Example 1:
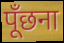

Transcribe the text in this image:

पूँछना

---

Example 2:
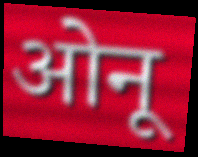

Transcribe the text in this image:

ओनू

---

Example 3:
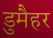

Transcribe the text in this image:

डुमैहर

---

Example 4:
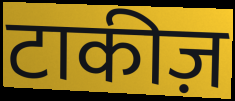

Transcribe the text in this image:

टाकीज़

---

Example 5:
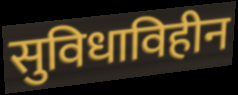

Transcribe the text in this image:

सुविधाविहीन